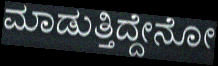
ಮಾಡುತ್ತಿದ್ದೇನೋ